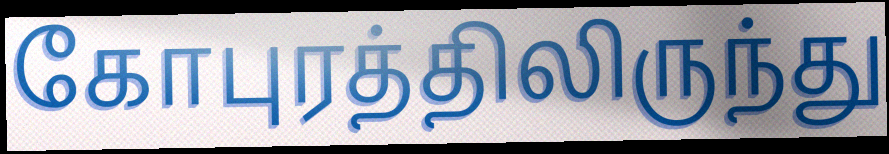
கோபுரத்திலிருந்து